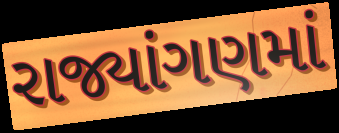
રાજ્યાંગણમાં